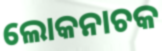
ଲୋକନାଚକ